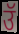
उॅ